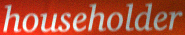
householder